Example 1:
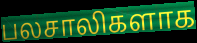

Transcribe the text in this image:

பலசாலிகளாக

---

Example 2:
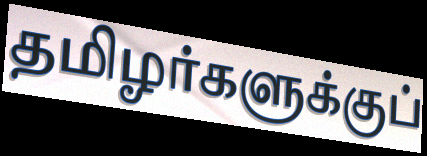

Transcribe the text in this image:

தமிழர்களுக்குப்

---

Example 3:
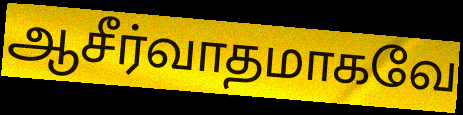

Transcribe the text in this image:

ஆசீர்வாதமாகவே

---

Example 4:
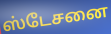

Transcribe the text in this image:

ஸ்டேசனை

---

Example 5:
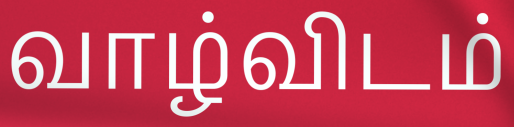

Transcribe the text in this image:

வாழ்விடம்